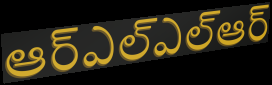
ఆర్ఎల్ఎల్ఆర్